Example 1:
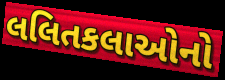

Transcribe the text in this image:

લલિતકલાઓનો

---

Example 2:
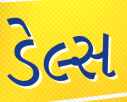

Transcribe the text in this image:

ડેલ્સ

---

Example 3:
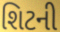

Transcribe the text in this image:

શિટની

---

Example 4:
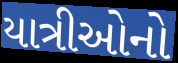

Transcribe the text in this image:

યાત્રીઓનો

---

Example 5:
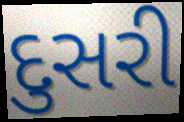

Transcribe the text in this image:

દુસરી